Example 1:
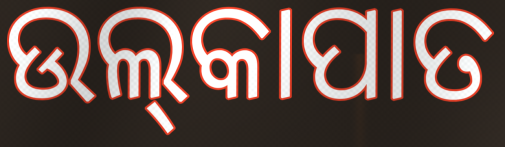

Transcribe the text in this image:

ଉଲ୍‍କାପାତ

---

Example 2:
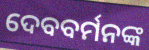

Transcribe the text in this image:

ଦେବବର୍ମନଙ୍କ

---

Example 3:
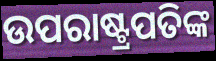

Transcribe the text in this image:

ଉପରାଷ୍ଟ୍ରପତିଙ୍କ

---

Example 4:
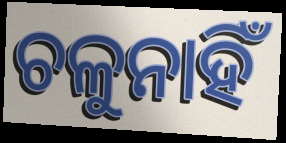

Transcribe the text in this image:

ଚଳୁନାହିଁ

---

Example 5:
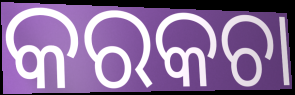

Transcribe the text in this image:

କରକଚା